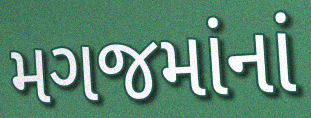
મગજમાંનાં